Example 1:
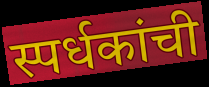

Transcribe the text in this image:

स्पर्धकांची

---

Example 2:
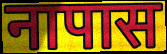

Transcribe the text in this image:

नापास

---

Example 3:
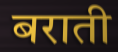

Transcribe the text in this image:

बराती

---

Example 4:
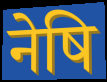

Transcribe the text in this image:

नेषि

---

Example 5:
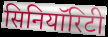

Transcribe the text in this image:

सिनियॉरिटी